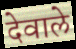
देवाले